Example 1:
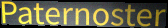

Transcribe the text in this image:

Paternoster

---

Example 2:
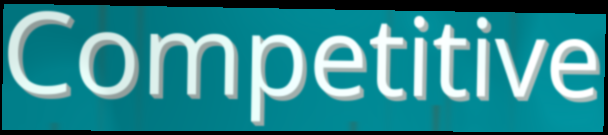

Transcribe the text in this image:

Competitive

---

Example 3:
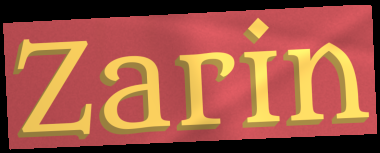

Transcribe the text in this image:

Zarin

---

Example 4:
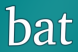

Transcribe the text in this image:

bat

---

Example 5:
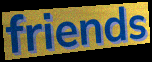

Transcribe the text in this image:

friends